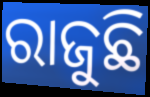
ରାଜୁଛି